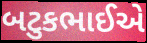
બટુકભાઈએ